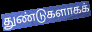
துண்டுகளாகக்